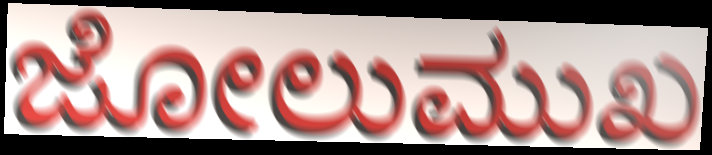
ಜೋಲುಮುಖ